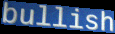
bullish